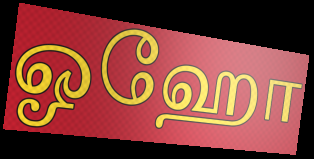
ஓஹோ